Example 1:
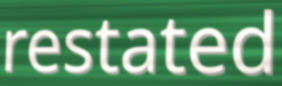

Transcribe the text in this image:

restated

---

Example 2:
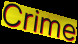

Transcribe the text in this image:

Crime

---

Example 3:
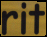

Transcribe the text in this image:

rit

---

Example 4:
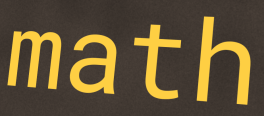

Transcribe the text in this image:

math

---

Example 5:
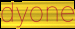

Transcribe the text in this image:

dyone